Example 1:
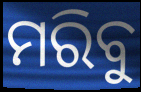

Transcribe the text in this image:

ମରିବୁ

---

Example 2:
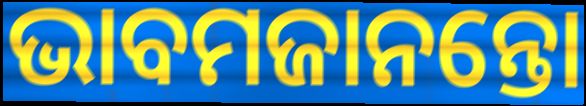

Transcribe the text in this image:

ଭାବମଜାନନ୍ତୋ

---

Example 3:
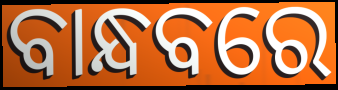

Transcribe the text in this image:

ବାନ୍ଧବରେ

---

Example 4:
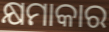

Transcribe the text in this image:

କ୍ଷମାକାର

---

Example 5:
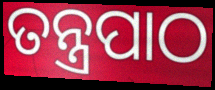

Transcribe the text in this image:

ତନ୍ତ୍ରପାଠ